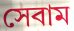
সেবাম